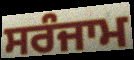
ਸਰੰਜਾਮ